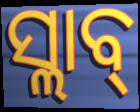
ସ୍ଲାବ୍